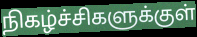
நிகழ்ச்சிகளுக்குள்